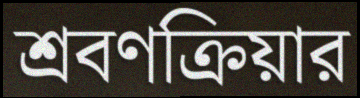
শ্রবণক্রিয়ার